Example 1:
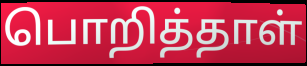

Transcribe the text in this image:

பொறித்தாள்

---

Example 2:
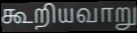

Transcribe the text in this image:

கூறியவாறு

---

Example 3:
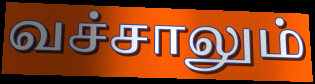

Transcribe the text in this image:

வச்சாலும்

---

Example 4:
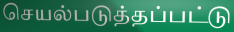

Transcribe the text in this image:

செயல்படுத்தப்பட்டு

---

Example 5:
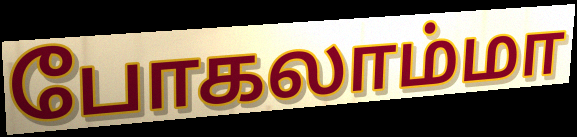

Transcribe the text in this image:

போகலாம்மா